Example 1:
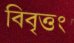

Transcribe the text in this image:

বিবৃত্তং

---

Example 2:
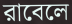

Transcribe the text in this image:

রাবেলে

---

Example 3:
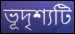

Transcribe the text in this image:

ভূদৃশ্যটি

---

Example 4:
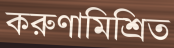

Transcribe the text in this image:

করুণামিশ্রিত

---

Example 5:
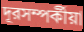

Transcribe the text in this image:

দূরসম্পর্কীয়া